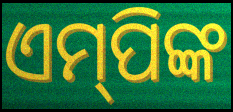
ଏମ୍‌ପିଙ୍କ